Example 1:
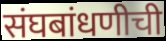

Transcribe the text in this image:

संघबांधणीची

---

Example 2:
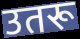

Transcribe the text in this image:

उतरू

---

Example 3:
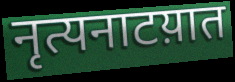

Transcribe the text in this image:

नृत्यनाटय़ात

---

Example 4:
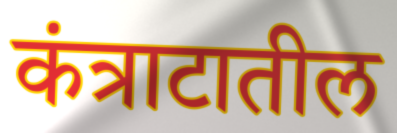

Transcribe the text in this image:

कंत्राटातील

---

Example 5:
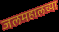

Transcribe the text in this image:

जलमहालच्या